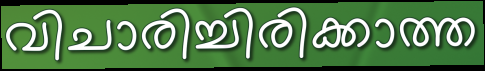
വിചാരിച്ചിരിക്കാത്ത